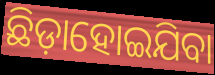
ଛିଡ଼ାହୋଇଯିବା